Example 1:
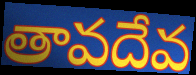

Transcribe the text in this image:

తావదేవ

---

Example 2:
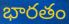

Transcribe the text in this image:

భారతం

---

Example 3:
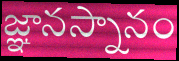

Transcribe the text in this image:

జ్ఞానస్నానం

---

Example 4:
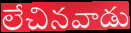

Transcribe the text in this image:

లేచినవాడు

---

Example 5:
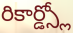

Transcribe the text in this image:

రికార్డ్స్లో